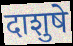
दाशुषे